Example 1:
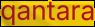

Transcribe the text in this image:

qantara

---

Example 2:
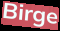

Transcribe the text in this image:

Birge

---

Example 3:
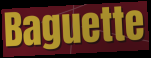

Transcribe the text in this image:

Baguette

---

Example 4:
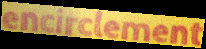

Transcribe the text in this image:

encirclement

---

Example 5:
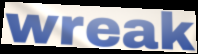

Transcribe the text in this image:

wreak